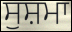
ਸੁਸ਼ਮਾ